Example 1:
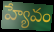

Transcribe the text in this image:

హ్యేవం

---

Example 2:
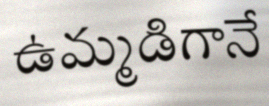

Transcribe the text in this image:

ఉమ్మడిగానే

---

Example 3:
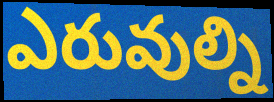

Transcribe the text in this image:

ఎరువుల్ని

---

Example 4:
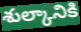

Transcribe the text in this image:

శుల్కానికి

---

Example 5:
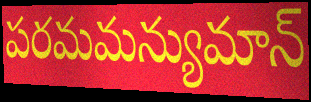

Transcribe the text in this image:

పరమమన్యుమాన్